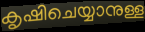
കൃഷിചെയ്യാനുള്ള